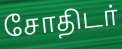
சோதிடர்